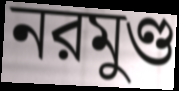
নরমুণ্ড